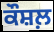
ਕੌਸ਼ਲ਼